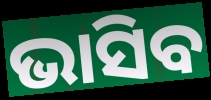
ଭାସିବ